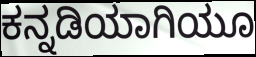
ಕನ್ನಡಿಯಾಗಿಯೂ